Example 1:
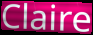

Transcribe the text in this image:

Claire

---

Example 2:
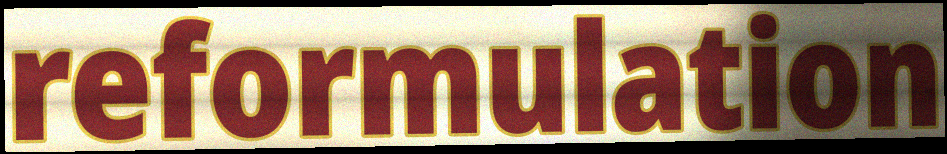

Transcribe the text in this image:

reformulation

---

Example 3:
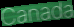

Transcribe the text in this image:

Canada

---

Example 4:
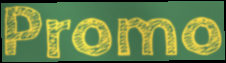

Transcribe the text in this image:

Promo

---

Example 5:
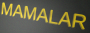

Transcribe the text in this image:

MAMALAR